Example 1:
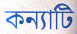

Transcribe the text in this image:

কন্যাটি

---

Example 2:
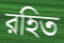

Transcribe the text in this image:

রহিত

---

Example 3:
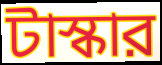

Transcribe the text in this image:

টাস্কার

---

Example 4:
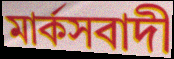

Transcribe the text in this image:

মার্কসবাদী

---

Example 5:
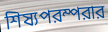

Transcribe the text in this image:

শিষ্যপরম্পরার